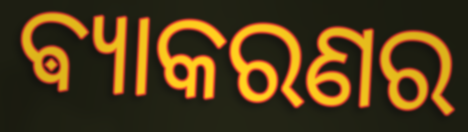
ଵ୍ୟାକରଣର